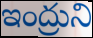
ఇంద్రుని